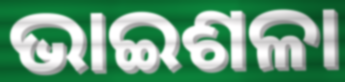
ଭାଇଶଳା